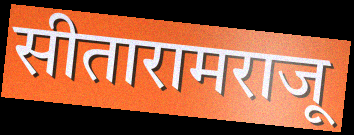
सीतारामराजू